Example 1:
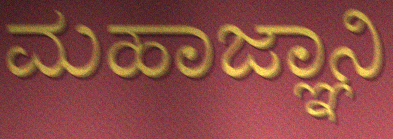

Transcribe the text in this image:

ಮಹಾಜ್ಞಾನಿ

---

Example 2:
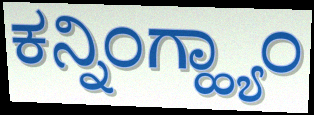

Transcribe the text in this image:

ಕನ್ನಿಂಗ್ಹ್ಯಾಂ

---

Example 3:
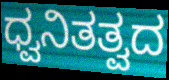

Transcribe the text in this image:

ಧ್ವನಿತತ್ವದ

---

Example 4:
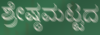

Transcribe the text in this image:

ಶ್ರೇಷ್ಠಮಟ್ಟದ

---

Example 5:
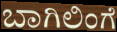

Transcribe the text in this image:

ಬಾಗಿಲಿಂಗೆ